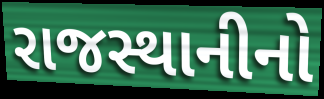
રાજસ્થાનીનો